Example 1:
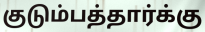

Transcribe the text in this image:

குடும்பத்தார்க்கு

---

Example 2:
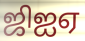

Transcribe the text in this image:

ஜிஐஏ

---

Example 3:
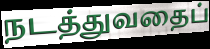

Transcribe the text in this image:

நடத்துவதைப்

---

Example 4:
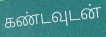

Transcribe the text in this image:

கண்டவுடன்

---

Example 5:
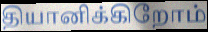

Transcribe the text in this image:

தியானிக்கிறோம்